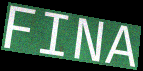
FINA